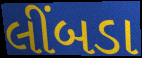
લીંબડા